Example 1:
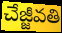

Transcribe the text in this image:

చేజ్జీవతి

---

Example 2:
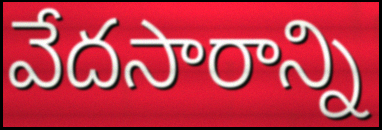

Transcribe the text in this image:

వేదసారాన్ని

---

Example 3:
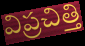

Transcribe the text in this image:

విప్రచిత్తి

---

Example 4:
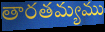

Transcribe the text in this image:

తారతమ్యము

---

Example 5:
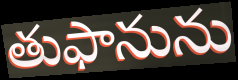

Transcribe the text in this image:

తుఫానును